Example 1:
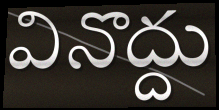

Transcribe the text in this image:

వినొద్దు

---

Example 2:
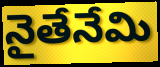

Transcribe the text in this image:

నైతేనేమి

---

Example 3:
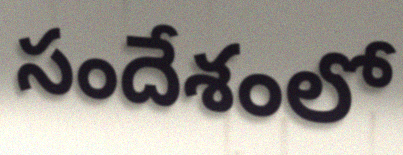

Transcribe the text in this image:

సందేశంలో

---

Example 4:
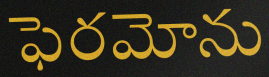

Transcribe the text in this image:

ఫెరమోను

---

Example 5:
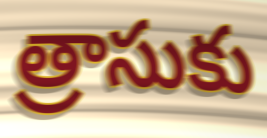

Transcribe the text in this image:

త్రాసుకు